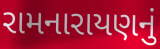
રામનારાયણનું